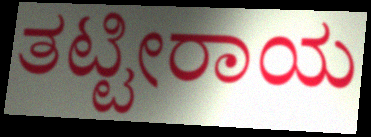
ತಟ್ಟೀರಾಯ